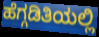
ಹೆಗ್ಗಡಿತಿಯಲ್ಲಿ